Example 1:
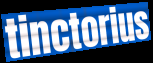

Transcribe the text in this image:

tinctorius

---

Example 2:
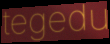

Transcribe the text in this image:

tegedu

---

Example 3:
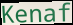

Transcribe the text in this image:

Kenaf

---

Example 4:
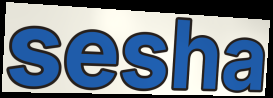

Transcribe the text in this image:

sesha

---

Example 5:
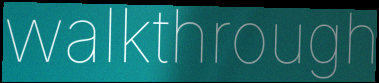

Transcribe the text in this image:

walkthrough